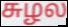
சுழல